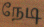
நேடி